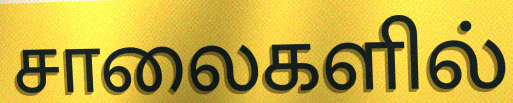
சாலைகளில்